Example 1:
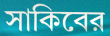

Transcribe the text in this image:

সাকিবের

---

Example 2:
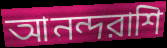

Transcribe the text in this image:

আনন্দরাশি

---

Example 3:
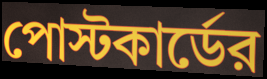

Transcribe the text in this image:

পোস্টকার্ডের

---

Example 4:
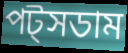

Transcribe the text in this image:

পট্‌সডাম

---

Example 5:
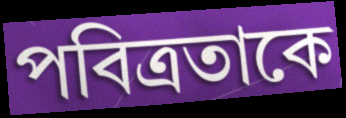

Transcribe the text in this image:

পবিত্রতাকে